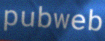
pubweb